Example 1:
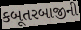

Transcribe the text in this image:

કબૂતરબાજીની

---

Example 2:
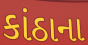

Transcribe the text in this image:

કાંઠાના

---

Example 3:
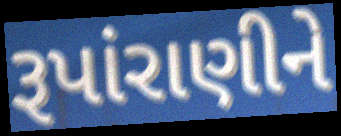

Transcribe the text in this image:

રૂપાંરાણીને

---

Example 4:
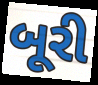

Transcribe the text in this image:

બૂરી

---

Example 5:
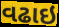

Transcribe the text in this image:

વઢાઇ